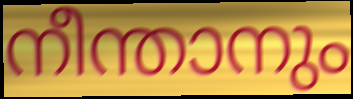
നീന്താനും